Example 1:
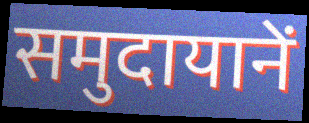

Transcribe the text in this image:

समुदायानें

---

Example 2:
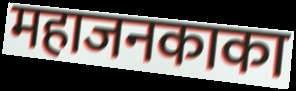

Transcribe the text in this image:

महाजनकाका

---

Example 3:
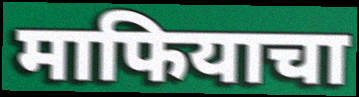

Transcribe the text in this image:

माफियाचा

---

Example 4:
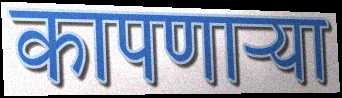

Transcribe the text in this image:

कापणाऱ्या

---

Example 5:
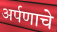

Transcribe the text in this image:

अर्पणाचे